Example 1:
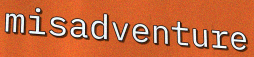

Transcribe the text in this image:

misadventure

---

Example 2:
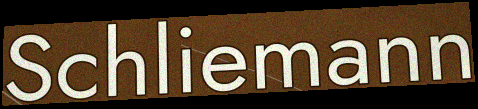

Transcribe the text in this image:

Schliemann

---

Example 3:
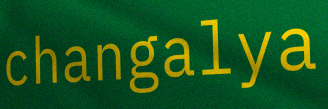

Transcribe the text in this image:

changalya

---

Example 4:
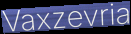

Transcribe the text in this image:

Vaxzevria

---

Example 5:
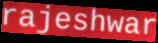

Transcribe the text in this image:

rajeshwar